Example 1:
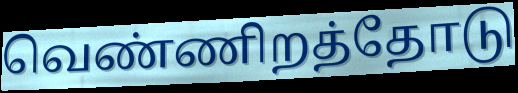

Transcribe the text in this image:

வெண்ணிறத்தோடு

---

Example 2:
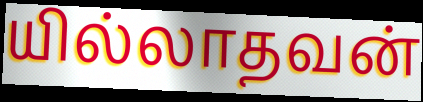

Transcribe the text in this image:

யில்லாதவன்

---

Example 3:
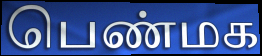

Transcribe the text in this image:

பெண்மக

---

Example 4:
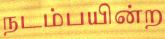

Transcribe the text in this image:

நடம்பயின்ற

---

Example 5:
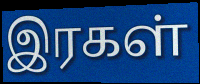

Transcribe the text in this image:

இரகள்